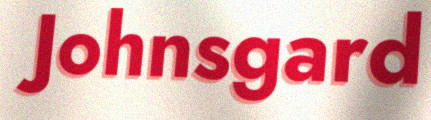
Johnsgard